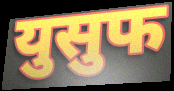
युसुफ